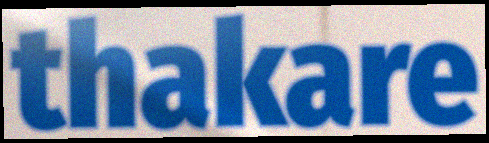
thakare